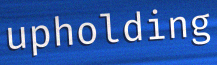
upholding